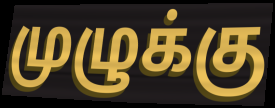
முழுக்கு